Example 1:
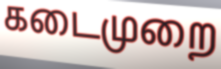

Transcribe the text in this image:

கடைமுறை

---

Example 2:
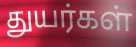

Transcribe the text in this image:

துயர்கள்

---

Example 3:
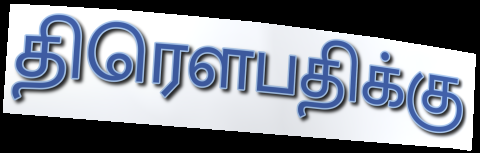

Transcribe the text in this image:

திரௌபதிக்கு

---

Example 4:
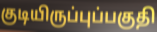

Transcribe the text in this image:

குடியிருப்புப்பகுதி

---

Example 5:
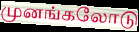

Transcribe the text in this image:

முனங்கலோடு